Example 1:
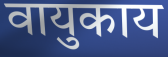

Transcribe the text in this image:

वायुकाय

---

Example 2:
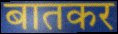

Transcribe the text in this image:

बातकर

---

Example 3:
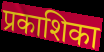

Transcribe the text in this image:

प्रकाशिका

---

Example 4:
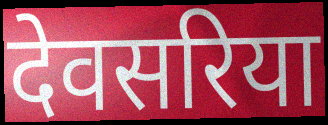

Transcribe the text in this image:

देवसरिया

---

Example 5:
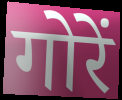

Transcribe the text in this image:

गोरें